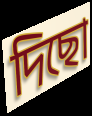
দিছো